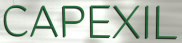
CAPEXIL